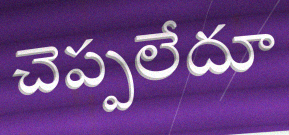
చెప్పలేదూ